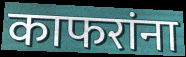
काफरांना